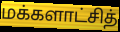
மக்களாட்சித்